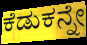
ಕೆಡುಕನ್ನೇ